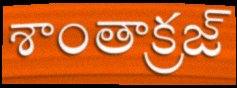
శాంతాక్రజ్